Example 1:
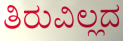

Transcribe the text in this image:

ತಿರುವಿಲ್ಲದ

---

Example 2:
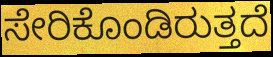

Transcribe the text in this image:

ಸೇರಿಕೊಂಡಿರುತ್ತದೆ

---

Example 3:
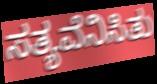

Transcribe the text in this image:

ಸತ್ಯವೆನಿಸಿತು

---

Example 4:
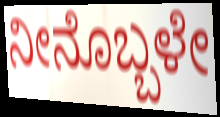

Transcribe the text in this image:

ನೀನೊಬ್ಬಳೇ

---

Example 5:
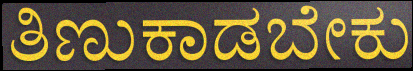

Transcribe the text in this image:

ತಿಣುಕಾಡಬೇಕು